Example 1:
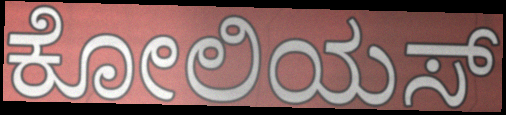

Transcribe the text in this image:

ಕೋಲಿಯಸ್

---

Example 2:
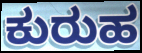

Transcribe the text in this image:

ಕುರುಹ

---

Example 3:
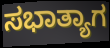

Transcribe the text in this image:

ಸಭಾತ್ಯಾಗ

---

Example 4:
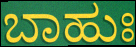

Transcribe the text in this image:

ಬಾಹುಃ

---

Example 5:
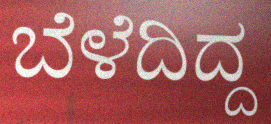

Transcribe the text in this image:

ಬೆಳೆದಿದ್ದ